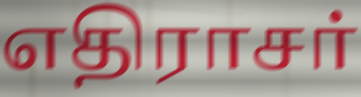
எதிராசர்